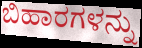
ಬಿಹಾರಗಳನ್ನು